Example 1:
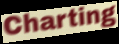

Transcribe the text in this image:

Charting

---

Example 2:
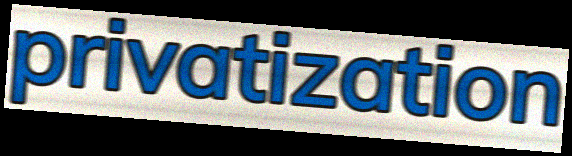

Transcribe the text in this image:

privatization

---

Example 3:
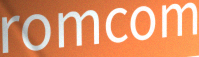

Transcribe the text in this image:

romcom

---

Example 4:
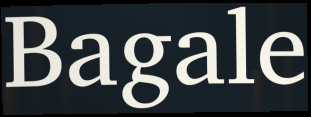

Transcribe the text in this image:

Bagale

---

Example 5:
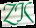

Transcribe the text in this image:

ZK